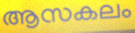
ആസകലം